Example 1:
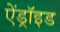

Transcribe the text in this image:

ऐंड्रॉइड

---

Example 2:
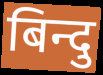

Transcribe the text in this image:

बिन्दु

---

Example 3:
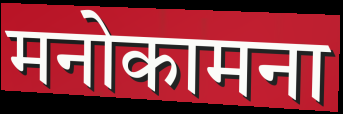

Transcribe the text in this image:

मनोकामना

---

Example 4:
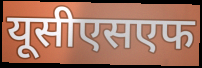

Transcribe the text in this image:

यूसीएसएफ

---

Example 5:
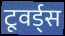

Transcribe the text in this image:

टूवर्ड्स